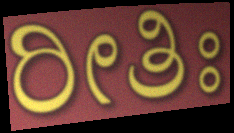
ರೀತಿಃ